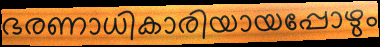
ഭരണാധികാരിയായപ്പോഴും